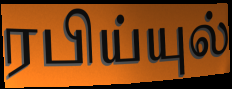
ரபிய்யுல்